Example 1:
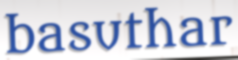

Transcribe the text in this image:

basuthar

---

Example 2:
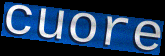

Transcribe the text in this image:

cuore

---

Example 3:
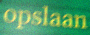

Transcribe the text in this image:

opslaan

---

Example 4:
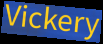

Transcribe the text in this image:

Vickery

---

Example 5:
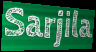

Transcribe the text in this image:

Sarjila